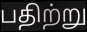
பதிற்று